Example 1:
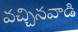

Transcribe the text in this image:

వచ్చినవాడి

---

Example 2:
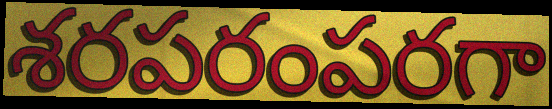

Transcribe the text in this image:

శరపరంపరగా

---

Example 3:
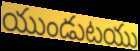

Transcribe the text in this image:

యుండుటయు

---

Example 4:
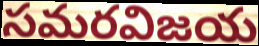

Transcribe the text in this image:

సమరవిజయ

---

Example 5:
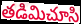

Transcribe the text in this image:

తడిమిచూసి